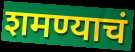
शमण्याचं